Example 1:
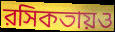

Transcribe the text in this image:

রসিকতায়ও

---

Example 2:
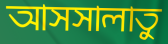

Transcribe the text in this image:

আসসালাতু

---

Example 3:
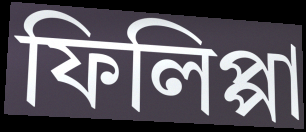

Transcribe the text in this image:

ফিলিপ্পা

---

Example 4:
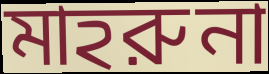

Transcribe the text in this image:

মাহরুনা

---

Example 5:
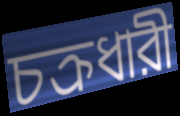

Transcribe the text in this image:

চক্রধারী